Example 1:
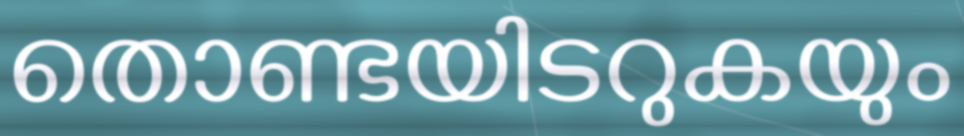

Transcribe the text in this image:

തൊണ്ടയിടറുകയും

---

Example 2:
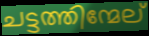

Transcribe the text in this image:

ചട്ടത്തിന്മേല്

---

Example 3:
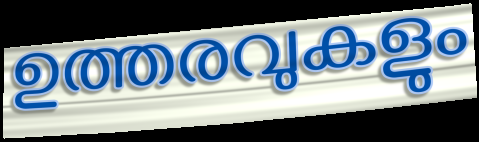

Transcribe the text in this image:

ഉത്തരവുകളും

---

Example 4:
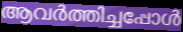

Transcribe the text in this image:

ആവർത്തിച്ചപ്പോൾ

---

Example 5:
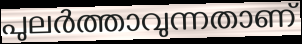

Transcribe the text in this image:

പുലർത്താവുന്നതാണ്